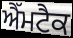
ਐੱਮਟੈਕ